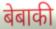
बेबाकी